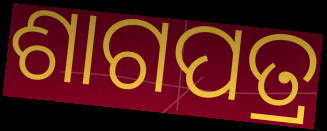
ଶାଗପତ୍ର